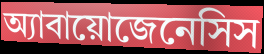
অ্যাবায়োজেনেসিস